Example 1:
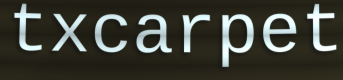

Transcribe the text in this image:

txcarpet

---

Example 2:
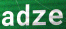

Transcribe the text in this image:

adze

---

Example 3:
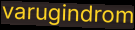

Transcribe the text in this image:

varugindrom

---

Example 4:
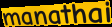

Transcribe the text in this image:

manathai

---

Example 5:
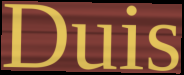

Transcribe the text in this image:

Duis